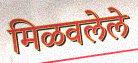
मिळवलेले